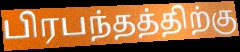
பிரபந்தத்திற்கு